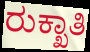
ರುಕ್ಖಾತಿ